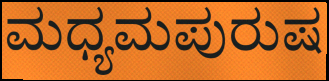
ಮಧ್ಯಮಪುರುಷ